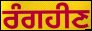
ਰੰਗਹੀਣ